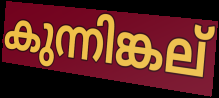
കുന്നിങ്കല്